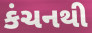
કંચનથી